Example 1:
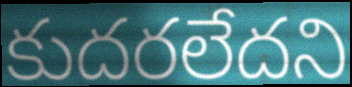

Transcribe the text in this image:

కుదరలేదని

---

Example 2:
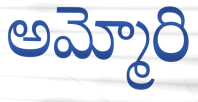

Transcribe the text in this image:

అమ్మోరి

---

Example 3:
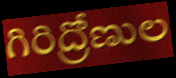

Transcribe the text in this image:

గిరిద్రోణుల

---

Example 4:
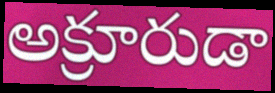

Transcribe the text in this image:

అక్రూరుడా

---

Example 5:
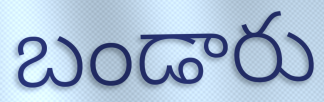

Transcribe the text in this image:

బండారు